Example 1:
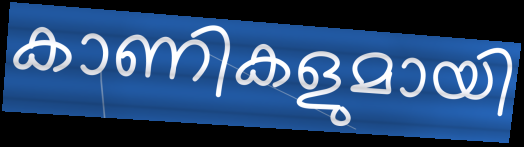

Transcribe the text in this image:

കാണികളുമായി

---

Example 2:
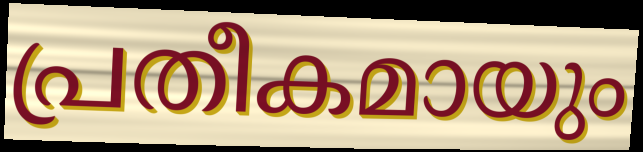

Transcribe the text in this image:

പ്രതീകമായും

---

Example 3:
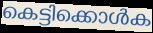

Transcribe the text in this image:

കെട്ടിക്കൊൾക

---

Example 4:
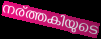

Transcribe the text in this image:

നര്ത്തകിയുടെ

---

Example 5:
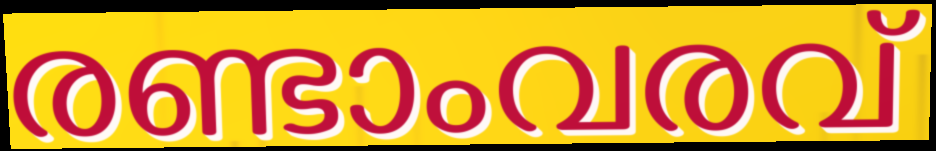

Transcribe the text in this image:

രണ്ടാംവരവ്